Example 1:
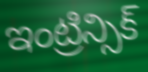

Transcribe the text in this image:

ఇంట్రిన్సిక్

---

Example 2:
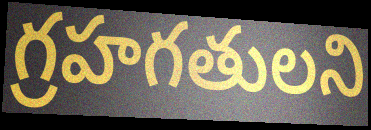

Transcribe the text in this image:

గ్రహగతులని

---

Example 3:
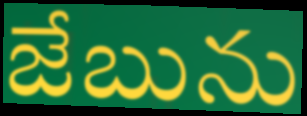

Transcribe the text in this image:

జేబును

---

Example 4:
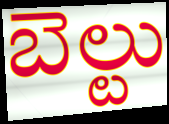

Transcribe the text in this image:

బెల్టు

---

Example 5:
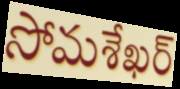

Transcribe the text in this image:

సోమశేఖర్